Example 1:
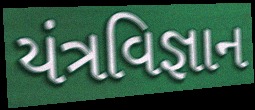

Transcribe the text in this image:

યંત્રવિજ્ઞાન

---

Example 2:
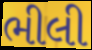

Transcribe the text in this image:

ભીલી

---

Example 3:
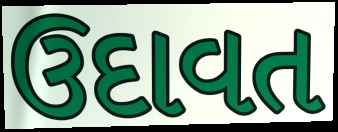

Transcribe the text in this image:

ઉદાવત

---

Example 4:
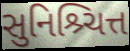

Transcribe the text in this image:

સુનિશ્ર્ચિત્ત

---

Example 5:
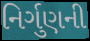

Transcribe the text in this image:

નિર્ગુણની